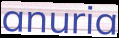
anuria